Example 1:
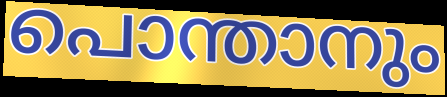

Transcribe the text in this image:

പൊന്താനും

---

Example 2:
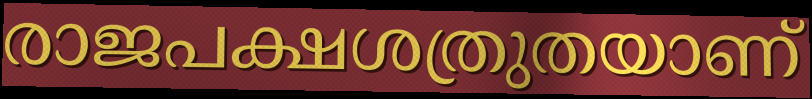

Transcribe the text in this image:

രാജപക്ഷശത്രുതയാണ്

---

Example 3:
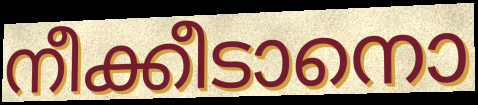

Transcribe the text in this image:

നീക്കീടാനൊ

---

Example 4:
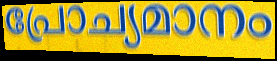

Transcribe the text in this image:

പ്രോച്യമാനം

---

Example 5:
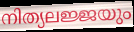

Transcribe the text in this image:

നിത്യലജ്ജയും